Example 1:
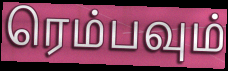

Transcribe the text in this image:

ரெம்பவும்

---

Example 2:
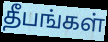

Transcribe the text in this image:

தீபங்கள்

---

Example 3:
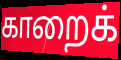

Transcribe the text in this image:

காறைக்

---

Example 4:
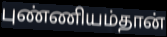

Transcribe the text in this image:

புண்ணியம்தான்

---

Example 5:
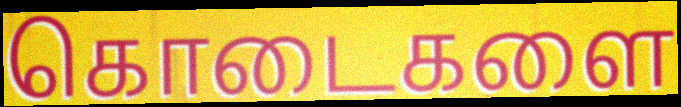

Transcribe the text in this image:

கொடைகளை